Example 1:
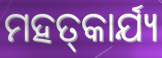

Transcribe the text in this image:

ମହତ୍‌କାର୍ଯ୍ୟ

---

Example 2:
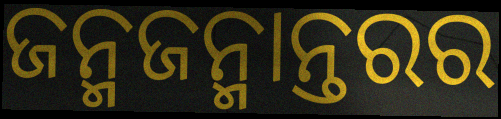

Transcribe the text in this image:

ଜନ୍ମଜନ୍ମାନ୍ତରର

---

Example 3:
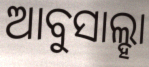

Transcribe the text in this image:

ଆବୁସାଲ୍ହା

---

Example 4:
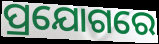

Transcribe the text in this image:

ପ୍ରଯୋଗରେ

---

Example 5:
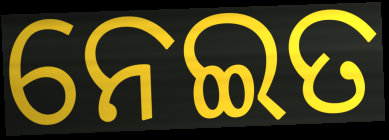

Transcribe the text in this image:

ନେଇତ